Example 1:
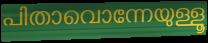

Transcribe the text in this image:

പിതാവൊന്നേയുള്ളൂ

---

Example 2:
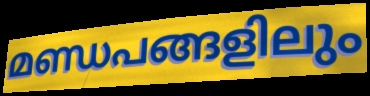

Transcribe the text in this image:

മണ്ഡപങ്ങളിലും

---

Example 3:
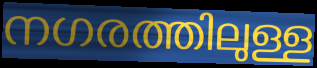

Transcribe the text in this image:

നഗരത്തിലുള്ള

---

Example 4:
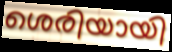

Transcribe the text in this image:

ശെരിയായി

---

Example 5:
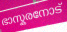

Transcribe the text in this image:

ഭാസ്കരനോട്